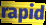
rapid